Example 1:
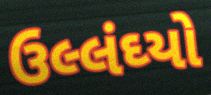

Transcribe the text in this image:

ઉલ્લંઘ્યો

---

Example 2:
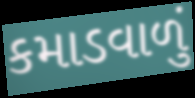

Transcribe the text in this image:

કમાડવાળું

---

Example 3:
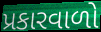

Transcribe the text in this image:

પ્રકારવાળો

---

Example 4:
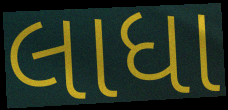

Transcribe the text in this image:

લાધા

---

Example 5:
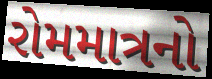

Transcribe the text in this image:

રોમમાત્રનો